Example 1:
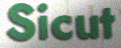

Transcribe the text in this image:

Sicut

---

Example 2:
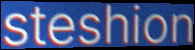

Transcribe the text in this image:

steshion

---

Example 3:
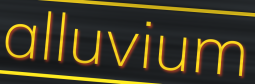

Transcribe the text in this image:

alluvium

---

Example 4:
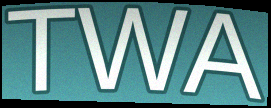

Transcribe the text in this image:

TWA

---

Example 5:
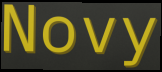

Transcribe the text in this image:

Novy